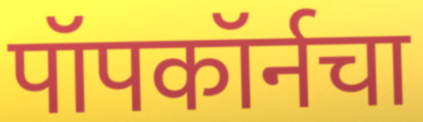
पॉपकॉर्नचा